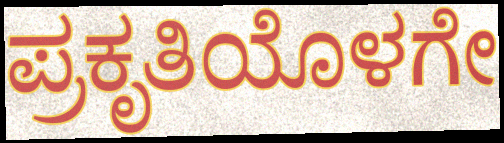
ಪ್ರಕೃತಿಯೊಳಗೇ